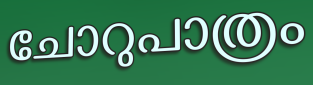
ചോറുപാത്രം